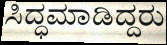
ಸಿದ್ಧಮಾಡಿದ್ದರು